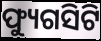
ଫ୍ୟୁଗସିଟି